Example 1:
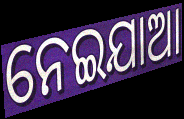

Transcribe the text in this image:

ନେଇଯାଆ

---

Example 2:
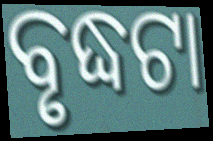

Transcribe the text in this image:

ବୃଦ୍ଧଟା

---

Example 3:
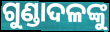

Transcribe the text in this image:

ଗୁଣ୍ଡାଦଳଙ୍କୁ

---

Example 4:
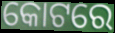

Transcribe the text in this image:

କୋଟରେ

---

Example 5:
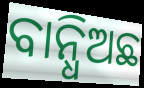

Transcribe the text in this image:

ବାନ୍ଧିଅଛ